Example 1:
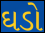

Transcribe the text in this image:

ઘડો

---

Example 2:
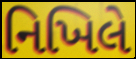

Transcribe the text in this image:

નિખિલે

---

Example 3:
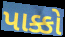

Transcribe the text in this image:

પાક્કો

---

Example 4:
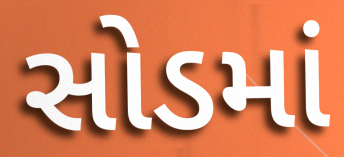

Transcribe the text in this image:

સોડમાં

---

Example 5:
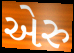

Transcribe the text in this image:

એરુ